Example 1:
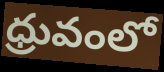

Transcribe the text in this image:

ధ్రువంలో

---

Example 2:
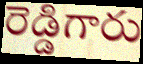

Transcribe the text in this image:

రెడ్డిగారు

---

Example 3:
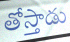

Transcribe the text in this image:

తోస్తాడు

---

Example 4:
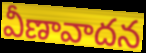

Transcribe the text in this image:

వీణావాదన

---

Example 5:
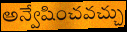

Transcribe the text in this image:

అన్వేషించవచ్చు